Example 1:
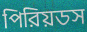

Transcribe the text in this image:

পিরিয়ডস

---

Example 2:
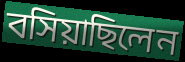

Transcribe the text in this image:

বসিয়াছিলেন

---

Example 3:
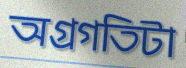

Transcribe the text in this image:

অগ্রগতিটা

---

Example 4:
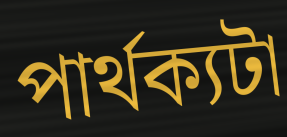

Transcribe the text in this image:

পার্থক্যটা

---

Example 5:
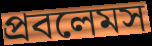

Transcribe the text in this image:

প্রবলেমস